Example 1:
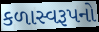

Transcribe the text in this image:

કળાસ્વરૂપનો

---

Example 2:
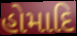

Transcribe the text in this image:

હોમાદિ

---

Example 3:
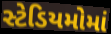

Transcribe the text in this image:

સ્ટેડિયમોમાં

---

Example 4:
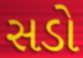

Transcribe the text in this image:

સડો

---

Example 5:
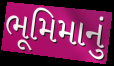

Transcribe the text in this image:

ભૂમિમાનું